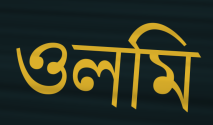
ওলমি